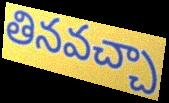
తినవచ్చా